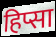
हिप्सा